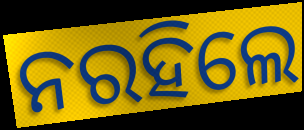
ନରହିଲେ